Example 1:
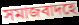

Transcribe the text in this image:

সমাজবাদহে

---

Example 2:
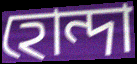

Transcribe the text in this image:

হোন্দা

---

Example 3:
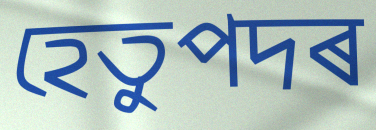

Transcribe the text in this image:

হেতুপদৰ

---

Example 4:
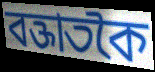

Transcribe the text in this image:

বক্তাতকৈ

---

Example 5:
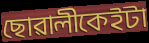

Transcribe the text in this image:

ছোৱালীকেইটা